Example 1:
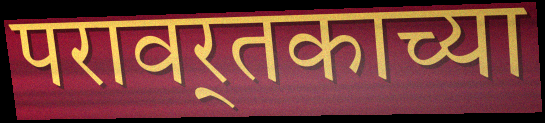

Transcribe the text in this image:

परावर्तकाच्या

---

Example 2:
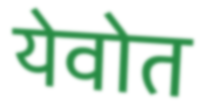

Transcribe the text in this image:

येवोत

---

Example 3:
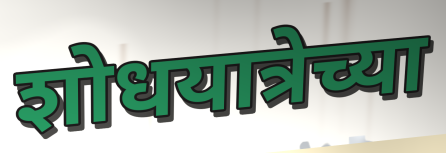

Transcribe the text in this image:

शोधयात्रेच्या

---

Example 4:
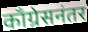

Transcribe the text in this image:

काँग्रेसनंतर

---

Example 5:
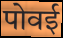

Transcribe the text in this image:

पोवई